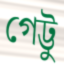
গেট্টু